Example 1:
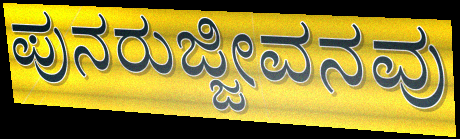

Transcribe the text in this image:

ಪುನರುಜ್ಜೀವನವು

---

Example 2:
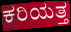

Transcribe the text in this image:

ಕರಿಯತ್ತ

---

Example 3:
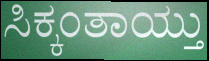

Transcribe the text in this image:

ಸಿಕ್ಕಂತಾಯ್ತು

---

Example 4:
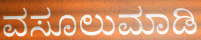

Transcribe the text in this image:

ವಸೂಲುಮಾಡಿ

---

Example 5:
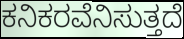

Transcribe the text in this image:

ಕನಿಕರವೆನಿಸುತ್ತದೆ